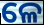
ଳେ